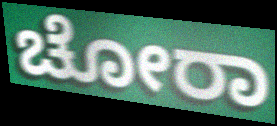
ಚೋರಾ